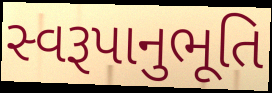
સ્વરૂપાનુભૂતિ